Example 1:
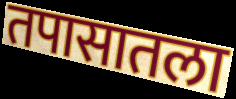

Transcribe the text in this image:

तपासातला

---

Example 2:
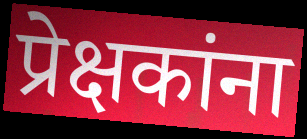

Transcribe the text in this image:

प्रेक्षकांना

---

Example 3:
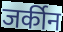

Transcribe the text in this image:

जर्कीन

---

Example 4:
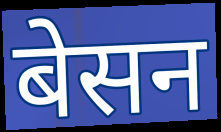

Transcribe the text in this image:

बेसन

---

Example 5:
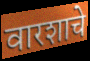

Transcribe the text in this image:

वारशाचे